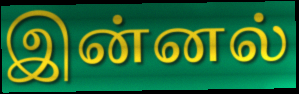
இன்னல்